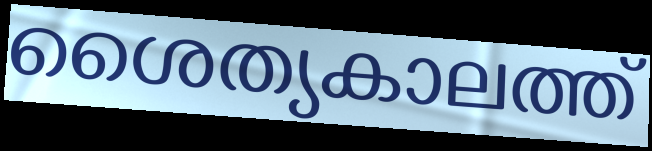
ശൈത്യകാലത്ത്